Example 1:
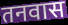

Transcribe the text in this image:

तनवास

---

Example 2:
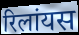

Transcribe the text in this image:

रिलांयस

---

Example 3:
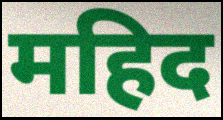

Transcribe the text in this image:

महिद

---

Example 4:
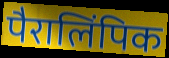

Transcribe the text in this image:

पैरालिंपिक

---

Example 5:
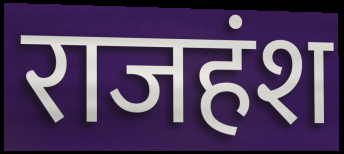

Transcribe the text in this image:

राजहंश